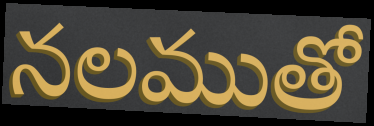
నలముతో